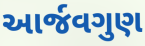
આર્જવગુણ